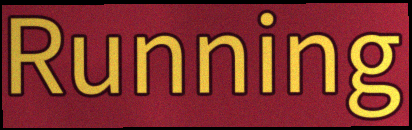
Running